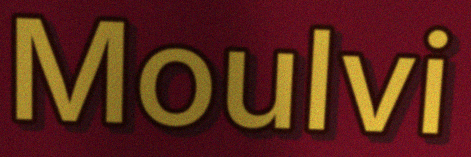
Moulvi